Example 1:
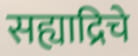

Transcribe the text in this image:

सह्याद्रिचे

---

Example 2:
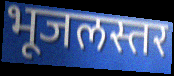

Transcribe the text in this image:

भूजलस्तर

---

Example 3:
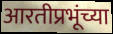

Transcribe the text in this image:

आरतीप्रभूंच्या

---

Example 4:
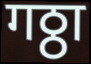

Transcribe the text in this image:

गठ्ठा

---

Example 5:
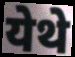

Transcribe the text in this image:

येथे